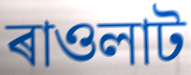
ৰাওলাট